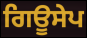
ਗਿਊਸੇਪ